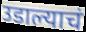
उडाल्याचं